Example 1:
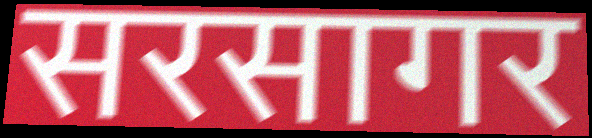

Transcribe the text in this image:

सरसागर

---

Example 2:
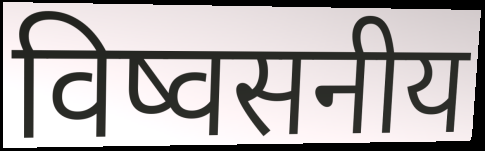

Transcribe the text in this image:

विष्वसनीय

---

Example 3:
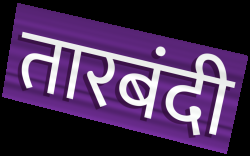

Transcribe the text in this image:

तारबंदी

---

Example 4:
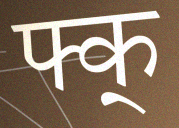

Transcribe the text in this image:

फ्क्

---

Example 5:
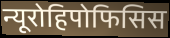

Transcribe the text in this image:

न्यूरोहिपोफिसिस